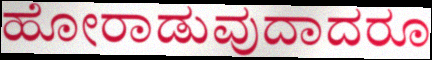
ಹೋರಾಡುವುದಾದರೂ